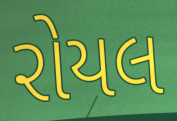
રોયલ